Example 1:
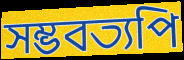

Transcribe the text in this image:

সম্ভবত্যপি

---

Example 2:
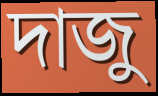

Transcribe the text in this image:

দাজু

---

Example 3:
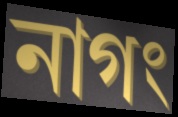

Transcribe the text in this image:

নাগং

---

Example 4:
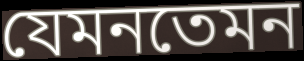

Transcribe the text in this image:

যেমনতেমন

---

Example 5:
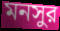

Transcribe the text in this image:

মনসুর